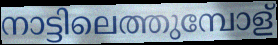
നാട്ടിലെത്തുമ്പോള്